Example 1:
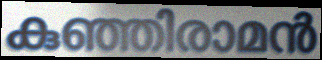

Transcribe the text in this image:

കുഞ്ഞിരാമൻ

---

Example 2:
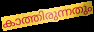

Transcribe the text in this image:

കാത്തിരുന്നതും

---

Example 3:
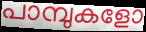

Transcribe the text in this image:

പാമ്പുകളോ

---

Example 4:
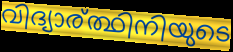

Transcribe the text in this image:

വിദ്യാര്ത്ഥിനിയുടെ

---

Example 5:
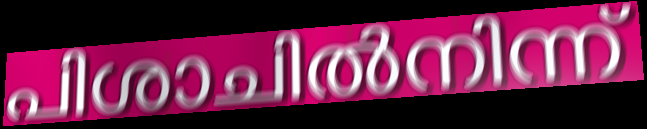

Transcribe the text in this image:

പിശാചിൽനിന്ന്